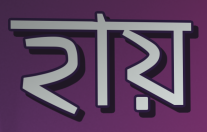
হায়